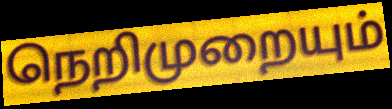
நெறிமுறையும்